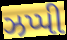
ઝપ્પી